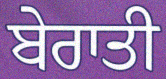
ਬੇਰਾਤੀ